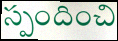
స్పందించి